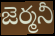
జెర్మనీ